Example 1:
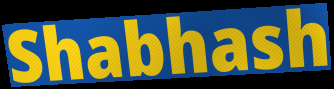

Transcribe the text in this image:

Shabhash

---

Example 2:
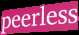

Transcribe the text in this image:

peerless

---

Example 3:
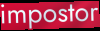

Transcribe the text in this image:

impostor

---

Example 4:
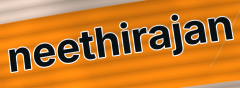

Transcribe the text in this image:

neethirajan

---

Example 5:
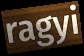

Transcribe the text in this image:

ragyi